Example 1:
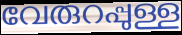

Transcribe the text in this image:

വേരുറപ്പുള്ള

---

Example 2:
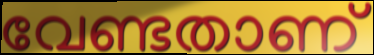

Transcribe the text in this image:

വേണ്ടതാണ്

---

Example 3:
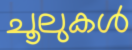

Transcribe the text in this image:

ചൂലുകൾ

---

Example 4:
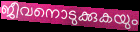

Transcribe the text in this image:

ജീവനൊടുക്കുകയും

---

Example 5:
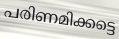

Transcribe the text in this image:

പരിണമിക്കട്ടെ